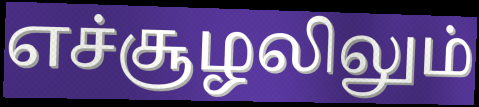
எச்சூழலிலும்